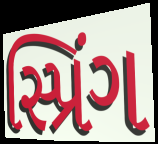
સ્પ્રિંગ